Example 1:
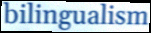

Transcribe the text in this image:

bilingualism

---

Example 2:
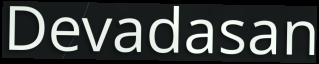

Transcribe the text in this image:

Devadasan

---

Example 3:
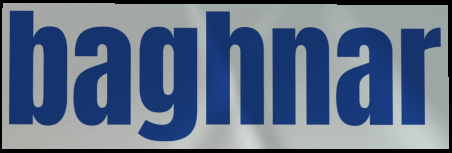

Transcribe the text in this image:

baghnar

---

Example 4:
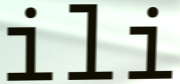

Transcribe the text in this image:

ili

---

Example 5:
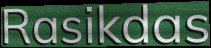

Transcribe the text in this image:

Rasikdas